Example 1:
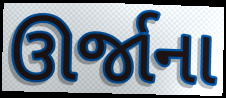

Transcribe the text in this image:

ઊર્જાના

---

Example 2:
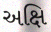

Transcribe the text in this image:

અક્ષિ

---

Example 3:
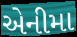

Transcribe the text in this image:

એનીમા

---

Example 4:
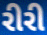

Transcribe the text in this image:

રીરી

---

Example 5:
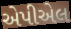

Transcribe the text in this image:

એપીએલ